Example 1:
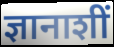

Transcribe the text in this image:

ज्ञानाशीं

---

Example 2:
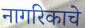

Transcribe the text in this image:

नागरिकाचे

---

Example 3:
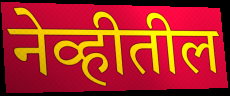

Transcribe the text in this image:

नेव्हीतील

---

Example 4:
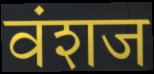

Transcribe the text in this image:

वंशज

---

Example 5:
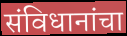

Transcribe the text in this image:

संविधानांचा